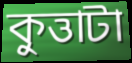
কুত্তাটা